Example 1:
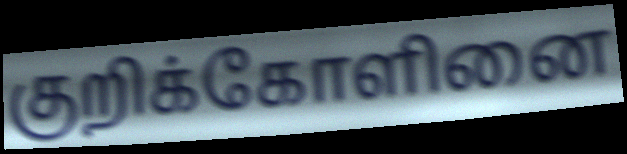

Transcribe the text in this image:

குறிக்கோளினை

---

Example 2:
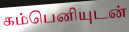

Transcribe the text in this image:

கம்பெனியுடன்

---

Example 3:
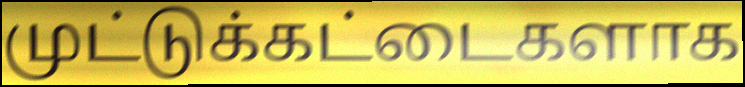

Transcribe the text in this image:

முட்டுக்கட்டைகளாக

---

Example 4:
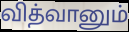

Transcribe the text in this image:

வித்வானும்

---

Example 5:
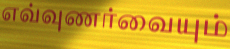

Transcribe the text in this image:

எவ்வுணர்வையும்